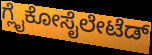
ಗ್ಲೈಕೋಸೈಲೇಟೆಡ್